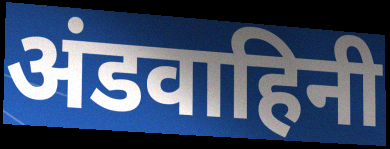
अंडवाहिनी